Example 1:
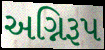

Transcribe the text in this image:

અગ્નિરૂપ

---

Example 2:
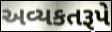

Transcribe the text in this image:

અવ્યકતરૂપે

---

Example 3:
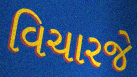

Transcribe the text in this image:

વિચારજે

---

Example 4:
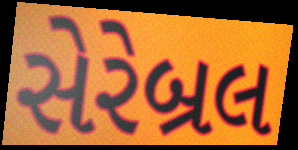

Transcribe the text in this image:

સેરેબ્રલ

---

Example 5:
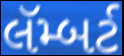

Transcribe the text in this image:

લૅમ્બર્ટ